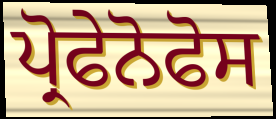
ਪ੍ਰੋਫੇਨੋਫੋਸ